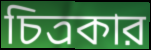
চিত্রকার